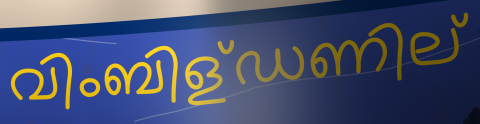
വിംബിള്ഡണില്